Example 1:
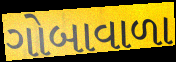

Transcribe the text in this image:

ગોબાવાળા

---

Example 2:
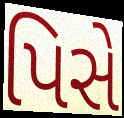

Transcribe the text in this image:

પિસે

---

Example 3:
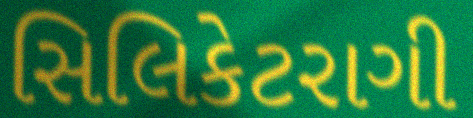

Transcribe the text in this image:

સિલિકેટરાગી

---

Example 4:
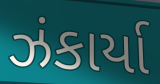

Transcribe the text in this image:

ઝંકાર્યા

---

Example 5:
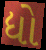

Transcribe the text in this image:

દ્યો